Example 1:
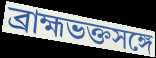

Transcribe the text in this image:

ব্রাহ্মভক্তসঙ্গে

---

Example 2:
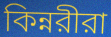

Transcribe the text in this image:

কিন্নরীরা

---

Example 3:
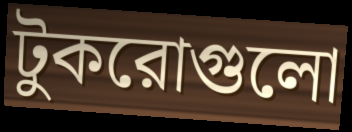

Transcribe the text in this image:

টুকরোগুলো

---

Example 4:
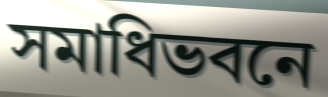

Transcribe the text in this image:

সমাধিভবনে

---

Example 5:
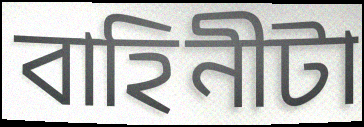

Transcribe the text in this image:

বাহিনীটা